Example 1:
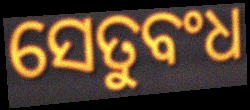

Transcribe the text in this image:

ସେତୁବଂଧ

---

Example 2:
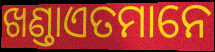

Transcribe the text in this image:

ଖଣ୍ଡାଏତମାନେ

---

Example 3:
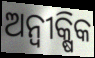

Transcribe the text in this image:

ଅନ୍ୱୀକ୍ଷିକ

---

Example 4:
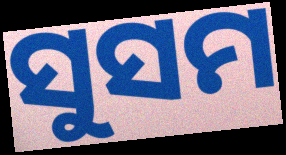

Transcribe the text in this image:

ସୁସମ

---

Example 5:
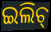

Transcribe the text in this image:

ଇଲିଚ୍